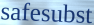
safesubst